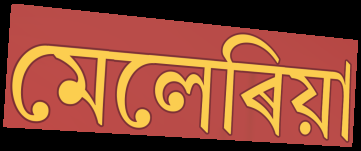
মেলেৰিয়া